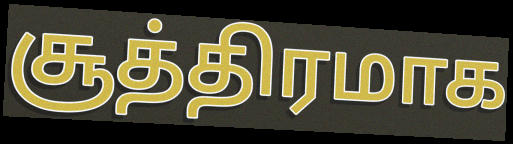
சூத்திரமாக